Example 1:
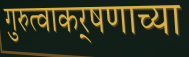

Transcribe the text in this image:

गुरुत्वाकर्षणाच्या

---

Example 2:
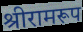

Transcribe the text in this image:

श्रीरामरूप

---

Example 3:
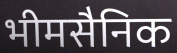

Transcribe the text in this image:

भीमसैनिक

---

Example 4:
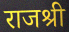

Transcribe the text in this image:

राजश्री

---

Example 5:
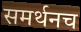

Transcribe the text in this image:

समर्थनच